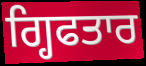
ਗ੍ਹਿਫਤਾਰ